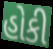
હોકી